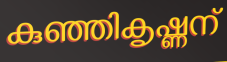
കുഞ്ഞികൃഷ്ണന്